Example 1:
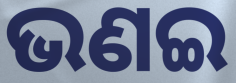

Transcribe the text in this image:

ଭଣଇ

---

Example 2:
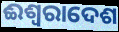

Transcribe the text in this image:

ଈଶ୍ୱରାଦେଶ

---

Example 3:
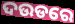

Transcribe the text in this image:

ଦଉଡରେ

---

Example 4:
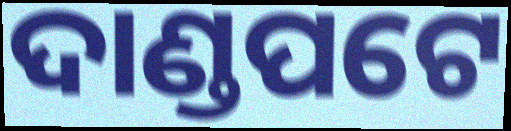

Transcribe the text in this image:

ଦାଣ୍ଡପଟେ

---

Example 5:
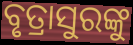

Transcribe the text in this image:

ବୃତ୍ରାସୁରଙ୍କୁ